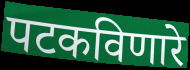
पटकविणारे